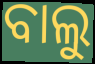
ବାଲୁ